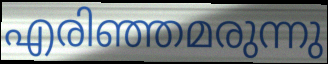
എരിഞ്ഞമരുന്നു